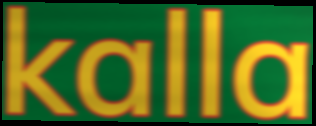
kalla